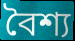
বৈশ্য